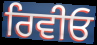
ਰਿਵੀਓ